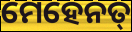
ମେହେନତ୍